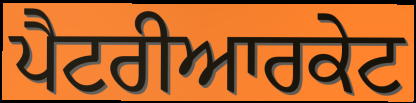
ਪੈਟਰੀਆਰਕੇਟ